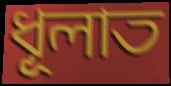
ধূলাত